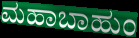
ಮಹಾಬಾಹುಂ